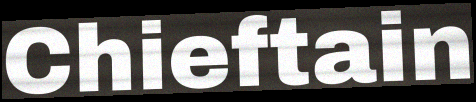
Chieftain